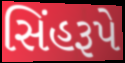
સિંહરૂપે